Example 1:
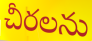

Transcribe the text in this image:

చీరలను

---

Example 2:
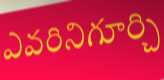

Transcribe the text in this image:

ఎవరినిగూర్చి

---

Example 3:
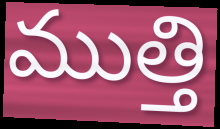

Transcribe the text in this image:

ముత్తి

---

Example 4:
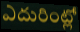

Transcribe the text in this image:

ఎదురింట్లో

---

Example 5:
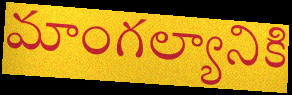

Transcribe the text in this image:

మాంగల్యానికి